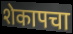
शेकापचा